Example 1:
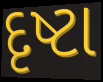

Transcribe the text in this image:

દૃષ્ટા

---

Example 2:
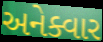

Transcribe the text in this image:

અનેક્વાર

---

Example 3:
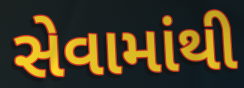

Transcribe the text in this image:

સેવામાંથી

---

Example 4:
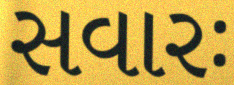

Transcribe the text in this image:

સવારઃ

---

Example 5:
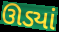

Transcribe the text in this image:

ઊડ્યાં